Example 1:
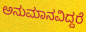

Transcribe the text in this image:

ಅನುಮಾನವಿದ್ದರೆ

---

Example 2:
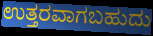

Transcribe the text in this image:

ಉತ್ತರವಾಗಬಹುದು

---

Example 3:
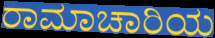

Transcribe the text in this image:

ರಾಮಾಚಾರಿಯ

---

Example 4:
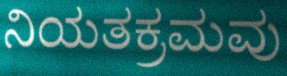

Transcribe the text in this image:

ನಿಯತಕ್ರಮವು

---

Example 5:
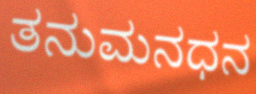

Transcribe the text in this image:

ತನುಮನಧನ